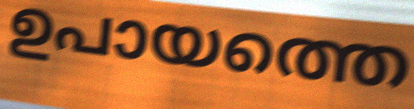
ഉപായത്തെ